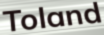
Toland